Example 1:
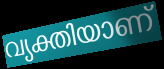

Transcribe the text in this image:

വ്യക്തിയാണ്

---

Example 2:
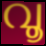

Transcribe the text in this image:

വൂ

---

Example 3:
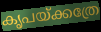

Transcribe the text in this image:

കൃപയ്ക്കത്രേ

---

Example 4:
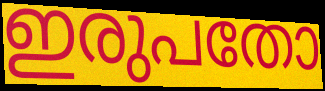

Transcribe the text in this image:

ഇരുപതോ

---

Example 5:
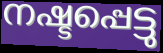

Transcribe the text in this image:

നഷ്ടപ്പെട്ടു